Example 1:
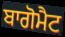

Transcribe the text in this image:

ਬਾਗੋਮੈਟ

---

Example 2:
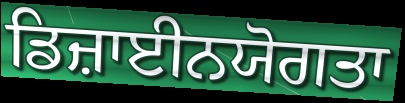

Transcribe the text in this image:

ਡਿਜ਼ਾਈਨਯੋਗਤਾ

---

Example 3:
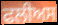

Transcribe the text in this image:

ਫਲੀਅਸ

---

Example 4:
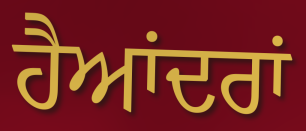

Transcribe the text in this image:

ਹੈਆਂਦਰਾਂ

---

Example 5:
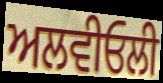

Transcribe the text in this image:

ਅਲਵੀਓਲੀ